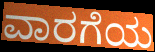
ವಾರಗೆಯ